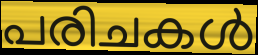
പരിചകൾ